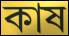
কাষ